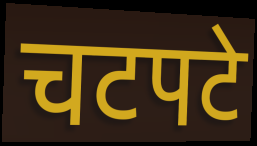
चटपटे